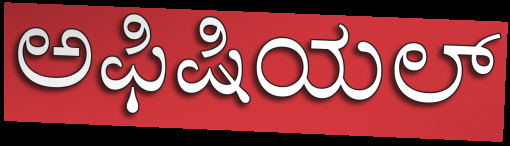
ಅಫಿಷಿಯಲ್